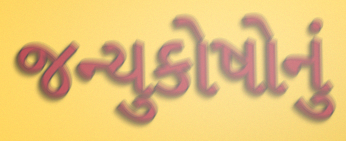
જન્યુકોષોનું